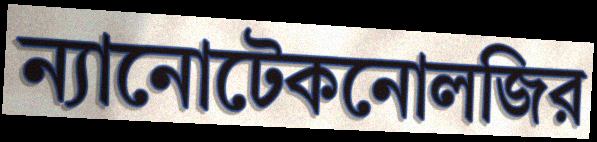
ন্যানোটেকনোলজির